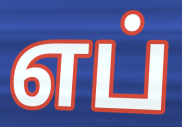
எப்